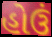
હોઉં